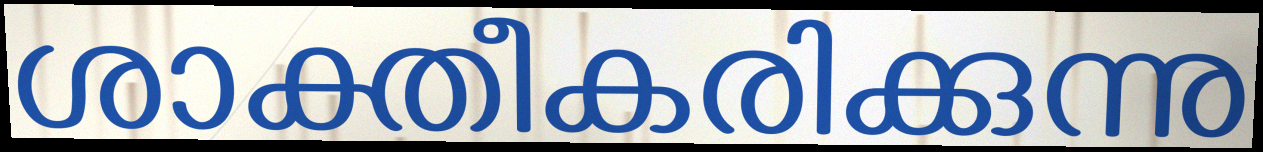
ശാക്തീകരിക്കുന്നു